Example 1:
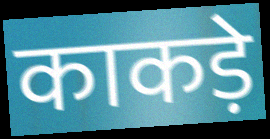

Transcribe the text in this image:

काकड़े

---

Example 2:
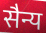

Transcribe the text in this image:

सैन्‍य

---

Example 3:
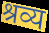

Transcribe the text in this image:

श्रव्य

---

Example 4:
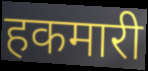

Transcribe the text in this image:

हकमारी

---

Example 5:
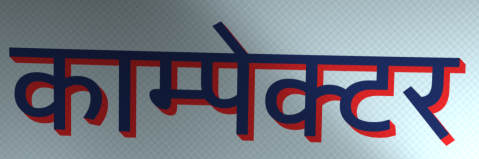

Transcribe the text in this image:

काम्पेक्टर